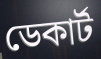
ডেকাৰ্ট